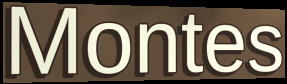
Montes